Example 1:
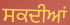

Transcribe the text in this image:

ਸਕਦੀਆਂ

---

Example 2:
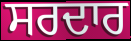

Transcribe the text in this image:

ਸਰਦਾਰ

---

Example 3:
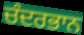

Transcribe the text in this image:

ਚੰਦਰਭਾਨ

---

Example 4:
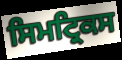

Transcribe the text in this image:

ਸਿਮਟ੍ਰਿਕਸ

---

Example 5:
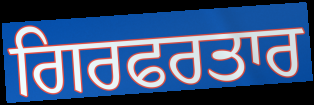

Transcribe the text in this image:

ਗਿਰਫਰਤਾਰ